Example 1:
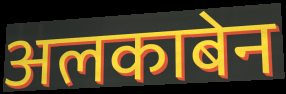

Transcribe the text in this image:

अलकाबेन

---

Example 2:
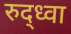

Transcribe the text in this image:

रुद्ध्वा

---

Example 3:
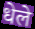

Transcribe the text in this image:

धेले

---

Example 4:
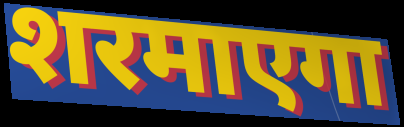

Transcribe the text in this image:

शरमाएगा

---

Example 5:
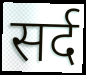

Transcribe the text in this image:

सर्द